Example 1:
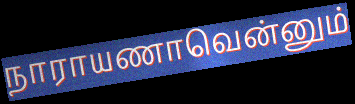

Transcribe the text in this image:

நாராயணாவென்னும்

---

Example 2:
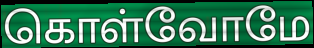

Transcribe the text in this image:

கொள்வோமே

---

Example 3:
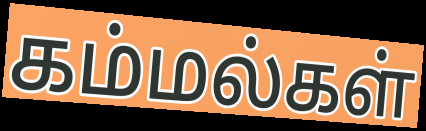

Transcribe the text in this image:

கம்மல்கள்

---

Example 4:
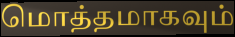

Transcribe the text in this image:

மொத்தமாகவும்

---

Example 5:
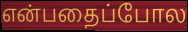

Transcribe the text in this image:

என்பதைப்போல